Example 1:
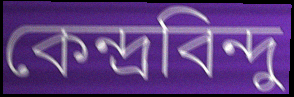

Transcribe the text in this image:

কেন্দ্ৰবিন্দু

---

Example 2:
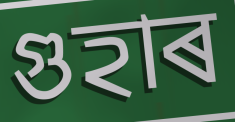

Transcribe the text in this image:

গুহাৰ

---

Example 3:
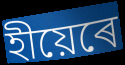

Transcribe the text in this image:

হীয়েৰে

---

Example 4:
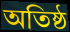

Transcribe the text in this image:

অতিষ্ঠ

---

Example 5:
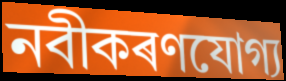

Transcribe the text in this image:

নবীকৰণযোগ্য